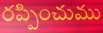
రప్పించుము